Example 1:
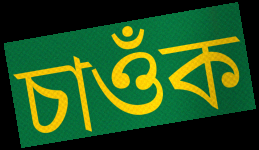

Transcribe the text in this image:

চাওঁক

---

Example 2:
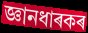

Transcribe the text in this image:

জ্ঞানধাৰকৰ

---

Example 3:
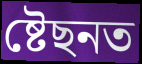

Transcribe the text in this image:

ষ্টেছনত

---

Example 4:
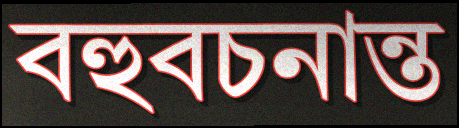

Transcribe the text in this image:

বহুবচনান্ত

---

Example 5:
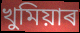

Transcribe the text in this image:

খুমিয়াৰ